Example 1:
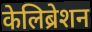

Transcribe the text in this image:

केलिब्रेशन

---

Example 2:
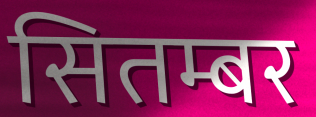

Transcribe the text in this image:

सितम्बर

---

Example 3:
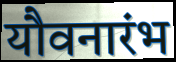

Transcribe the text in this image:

यौवनारंभ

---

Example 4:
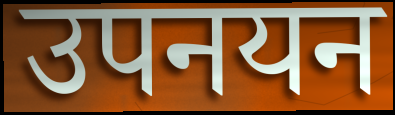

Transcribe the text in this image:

उपनयन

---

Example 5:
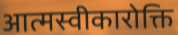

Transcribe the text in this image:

आत्मस्वीकारोक्ति